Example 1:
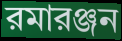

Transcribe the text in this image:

রমারঞ্জন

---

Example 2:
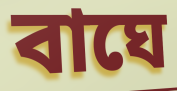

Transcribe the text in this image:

বাঘে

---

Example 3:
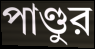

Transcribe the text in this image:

পাণ্ডুর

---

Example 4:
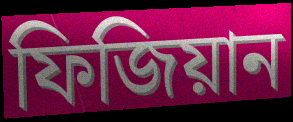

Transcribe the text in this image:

ফিজিয়ান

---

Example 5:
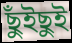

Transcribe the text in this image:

ছুঁইছুই